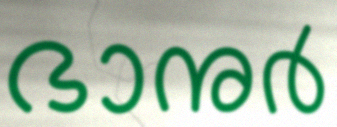
ഭാനുർ